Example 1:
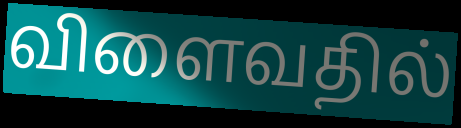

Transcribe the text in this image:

விளைவதில்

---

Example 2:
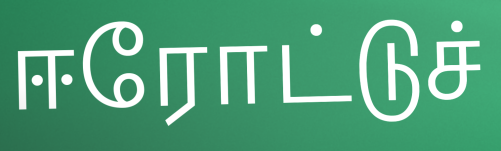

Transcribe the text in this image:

ஈரோட்டுச்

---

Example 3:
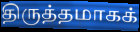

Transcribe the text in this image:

திருத்தமாகக்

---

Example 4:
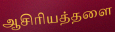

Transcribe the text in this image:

ஆசிரியத்தளை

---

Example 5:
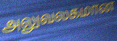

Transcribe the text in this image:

அலுவலகமான